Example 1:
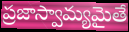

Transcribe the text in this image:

ప్రజాస్వామ్యమైతే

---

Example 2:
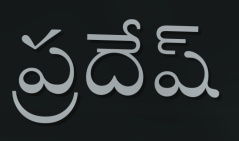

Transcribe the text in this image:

ప్రదేష్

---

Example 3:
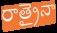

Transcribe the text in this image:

రాత్రైనా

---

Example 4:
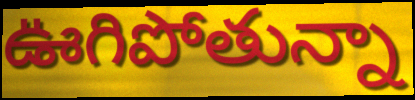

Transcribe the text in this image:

ఊగిపోతున్నా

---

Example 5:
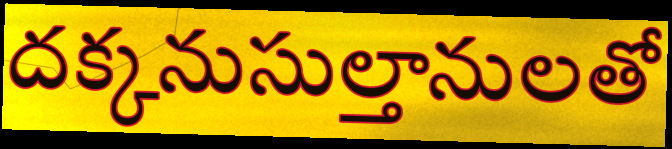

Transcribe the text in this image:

దక్కనుసుల్తానులతో